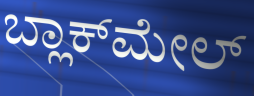
ಬ್ಲಾಕ್‌ಮೇಲ್